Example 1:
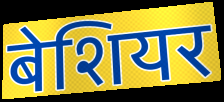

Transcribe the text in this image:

बेशियर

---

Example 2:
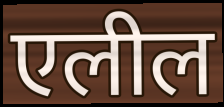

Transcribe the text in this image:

एलील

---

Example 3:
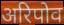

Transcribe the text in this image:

अरिपोव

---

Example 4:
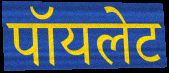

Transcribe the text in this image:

पॉयलेट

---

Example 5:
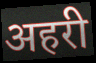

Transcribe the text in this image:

अहरी